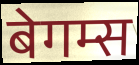
बेगम्स